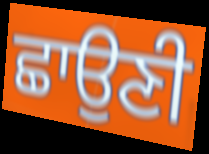
ਛਾਉਣੀ